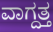
ವಾಗ್ದತ್ತ